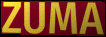
ZUMA